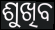
ଶୁଖିବ